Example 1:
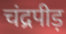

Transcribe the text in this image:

चंद्रपीड़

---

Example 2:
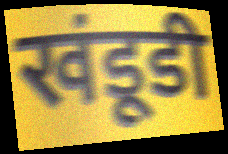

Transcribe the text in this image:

खंडूडी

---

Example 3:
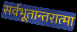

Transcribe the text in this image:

सर्वभूतान्तरात्मा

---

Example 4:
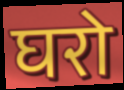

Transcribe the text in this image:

घरो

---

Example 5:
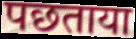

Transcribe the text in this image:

पछताया